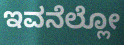
ಇವನೆಲ್ಲೋ